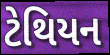
ટેથિયન